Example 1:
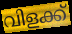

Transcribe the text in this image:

വിളക്ക്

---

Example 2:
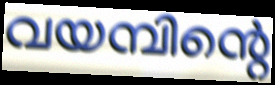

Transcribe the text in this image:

വയമ്പിന്റെ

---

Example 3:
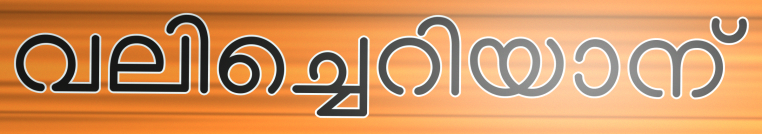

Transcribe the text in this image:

വലിച്ചെറിയാന്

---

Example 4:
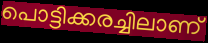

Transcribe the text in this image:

പൊട്ടിക്കരച്ചിലാണ്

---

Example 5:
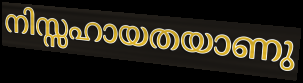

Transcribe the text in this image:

നിസ്സഹായതയാണു